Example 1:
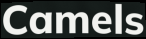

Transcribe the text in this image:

Camels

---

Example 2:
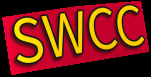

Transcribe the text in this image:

SWCC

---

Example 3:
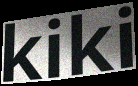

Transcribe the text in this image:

kiki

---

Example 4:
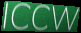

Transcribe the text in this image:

ICCW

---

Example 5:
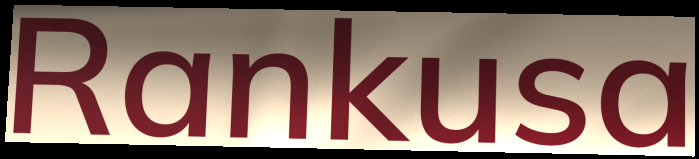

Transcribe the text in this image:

Rankusa